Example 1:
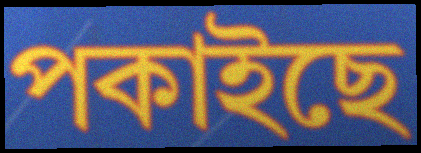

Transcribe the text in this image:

পকাইছে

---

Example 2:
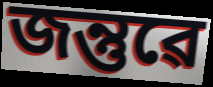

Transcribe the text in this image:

জন্তুৱে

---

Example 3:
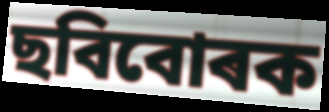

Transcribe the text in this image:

ছবিবোৰক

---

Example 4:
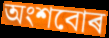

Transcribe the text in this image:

অংশবোৰ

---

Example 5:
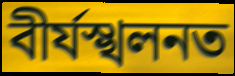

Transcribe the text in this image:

বীৰ্যস্খলনত